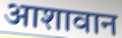
आशावान